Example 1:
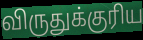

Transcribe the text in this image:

விருதுக்குரிய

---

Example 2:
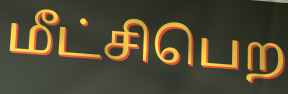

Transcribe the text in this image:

மீட்சிபெற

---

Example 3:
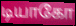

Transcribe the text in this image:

டியாகோ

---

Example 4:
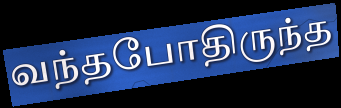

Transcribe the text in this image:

வந்தபோதிருந்த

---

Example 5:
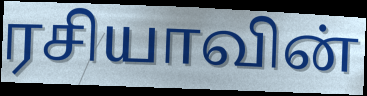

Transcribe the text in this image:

ரசியாவின்